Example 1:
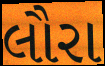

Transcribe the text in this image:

લૌરા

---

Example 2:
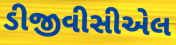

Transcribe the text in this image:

ડીજીવીસીએલ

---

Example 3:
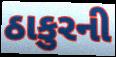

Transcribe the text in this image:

ઠાકુરની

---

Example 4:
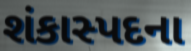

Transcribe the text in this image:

શંકાસ્પદના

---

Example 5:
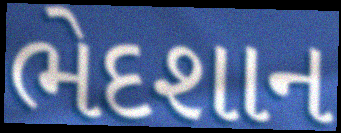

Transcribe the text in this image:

ભેદશાન